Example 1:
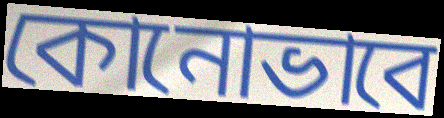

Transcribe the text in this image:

কোনোভাবে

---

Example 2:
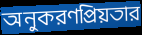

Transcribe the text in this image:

অনুকরণপ্রিয়তার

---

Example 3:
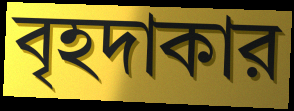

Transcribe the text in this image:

বৃহদাকার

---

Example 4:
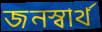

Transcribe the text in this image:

জনস্বার্থ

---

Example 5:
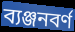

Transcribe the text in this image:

ব্যঞ্জনবর্ণ